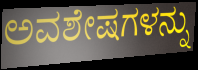
ಅವಶೇಷಗಳನ್ನು